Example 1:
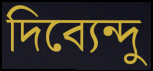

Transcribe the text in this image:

দিব্যেন্দু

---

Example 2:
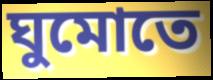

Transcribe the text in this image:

ঘুমোতে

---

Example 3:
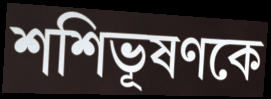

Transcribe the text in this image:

শশিভূষণকে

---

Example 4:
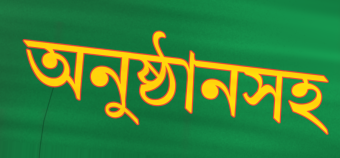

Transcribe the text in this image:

অনুষ্ঠানসহ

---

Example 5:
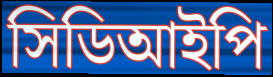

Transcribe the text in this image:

সিডিআইপি